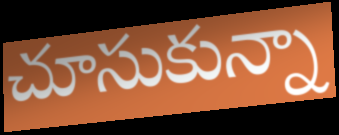
చూసుకున్నా